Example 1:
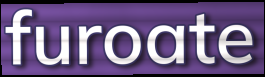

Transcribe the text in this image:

furoate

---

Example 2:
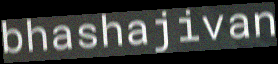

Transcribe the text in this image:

bhashajivan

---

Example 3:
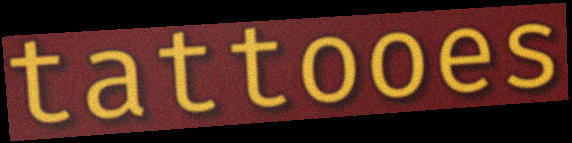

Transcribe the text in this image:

tattooes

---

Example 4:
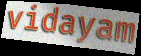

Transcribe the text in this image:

vidayam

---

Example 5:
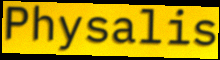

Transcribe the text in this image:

Physalis